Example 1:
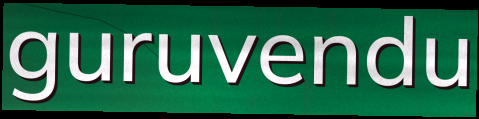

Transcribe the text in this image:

guruvendu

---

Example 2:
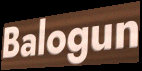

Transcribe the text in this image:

Balogun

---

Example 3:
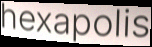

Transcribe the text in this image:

hexapolis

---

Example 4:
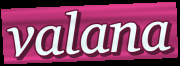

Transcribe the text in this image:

valana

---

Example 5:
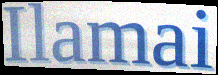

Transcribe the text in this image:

Ilamai